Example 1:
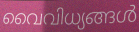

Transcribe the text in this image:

വൈവിധ്യങ്ങൾ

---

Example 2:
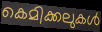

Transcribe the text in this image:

കെമിക്കലുകൾ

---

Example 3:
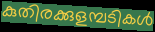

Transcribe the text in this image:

കുതിരക്കുളമ്പടികൾ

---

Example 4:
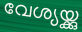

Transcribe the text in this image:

വേശ്യയ്ക്കു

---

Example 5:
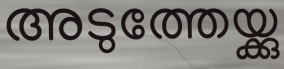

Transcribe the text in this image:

അടുത്തേയ്ക്കു